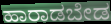
ಹಾರಾಡಬೇಡ